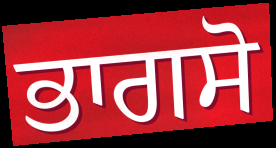
ਭਾਗਸੋ